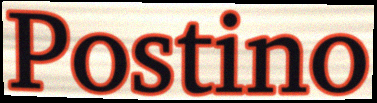
Postino